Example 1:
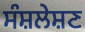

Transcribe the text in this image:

ਸੰਸ਼ਲੇਸ਼ਣ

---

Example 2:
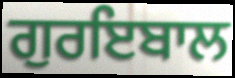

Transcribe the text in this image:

ਗੁਰਇਬਾਲ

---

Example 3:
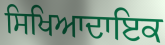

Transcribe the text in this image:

ਸਿਖਿਆਦਾਇਕ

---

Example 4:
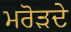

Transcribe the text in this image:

ਮਰੋੜਦੇ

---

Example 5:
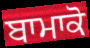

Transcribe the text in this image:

ਬਾਮਾਕੋ